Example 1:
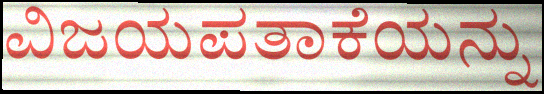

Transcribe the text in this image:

ವಿಜಯಪತಾಕೆಯನ್ನು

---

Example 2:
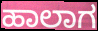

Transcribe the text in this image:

ಹಾಲಾಗ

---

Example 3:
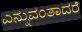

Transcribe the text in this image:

ಎನ್ನುವಂತಾದರೆ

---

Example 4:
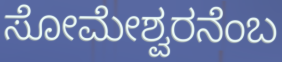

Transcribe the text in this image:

ಸೋಮೇಶ್ವರನೆಂಬ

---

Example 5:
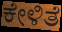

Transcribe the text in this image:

ಕೇಳಿತೆ